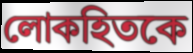
লোকহিতকে